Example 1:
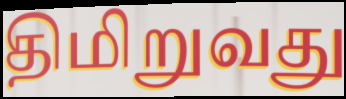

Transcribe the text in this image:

திமிறுவது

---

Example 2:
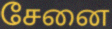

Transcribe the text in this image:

சேனை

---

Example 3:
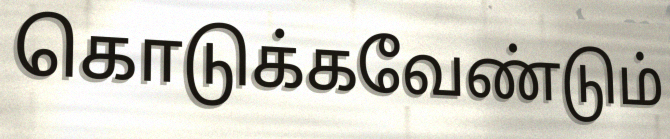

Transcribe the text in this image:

கொடுக்கவேண்டும்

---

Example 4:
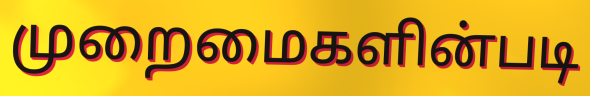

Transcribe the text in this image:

முறைமைகளின்படி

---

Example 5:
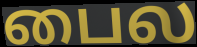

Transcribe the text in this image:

பைல